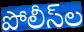
పోలీస్‌ల